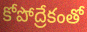
కోపోద్రేకంతో